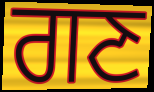
ਗਣ